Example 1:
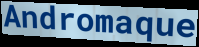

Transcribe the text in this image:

Andromaque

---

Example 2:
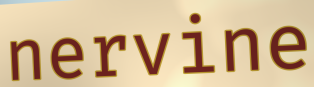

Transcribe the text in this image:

nervine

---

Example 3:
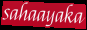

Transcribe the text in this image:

sahaayaka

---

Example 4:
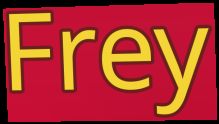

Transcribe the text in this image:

Frey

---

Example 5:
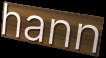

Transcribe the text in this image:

hann